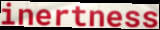
inertness